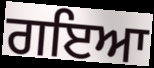
ਗਇਆ